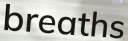
breaths